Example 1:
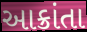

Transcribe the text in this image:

આક્રાંતા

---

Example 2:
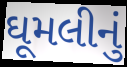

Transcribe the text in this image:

ઘૂમલીનું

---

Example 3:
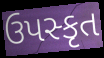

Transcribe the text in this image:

ઉપસ્કૃત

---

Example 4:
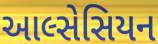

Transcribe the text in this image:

આલ્સેસિયન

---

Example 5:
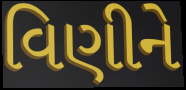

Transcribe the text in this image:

વિણીને